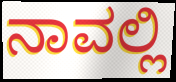
ನಾವಲ್ಲಿ